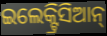
ଇଲେକ୍ଟ୍ରିସିଆନ୍